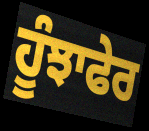
ਹੂੰਝਾਫੇਰ